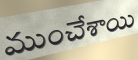
ముంచేశాయి